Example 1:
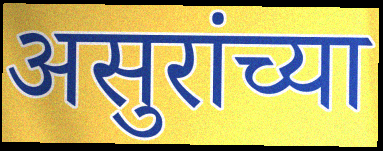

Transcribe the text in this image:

असुरांच्या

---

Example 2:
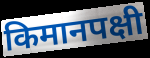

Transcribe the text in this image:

किमानपक्षी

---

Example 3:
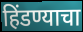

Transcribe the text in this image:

हिंडण्याचा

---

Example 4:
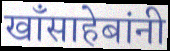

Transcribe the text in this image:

खॉंसाहेबांनी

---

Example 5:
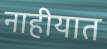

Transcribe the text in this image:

नाहीयात